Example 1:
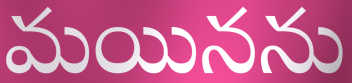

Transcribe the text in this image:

మయినను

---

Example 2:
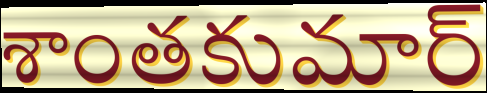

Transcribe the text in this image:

శాంతకుమార్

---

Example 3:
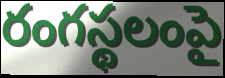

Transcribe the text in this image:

రంగస్థలంపై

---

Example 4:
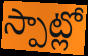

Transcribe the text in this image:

స్పాట్లో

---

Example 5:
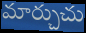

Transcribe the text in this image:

మార్చుచు